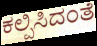
ಕಲ್ಪಿಸಿದಂತೆ